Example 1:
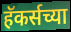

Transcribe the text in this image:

हॅकर्सच्या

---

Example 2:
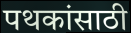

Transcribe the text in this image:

पथकांसाठी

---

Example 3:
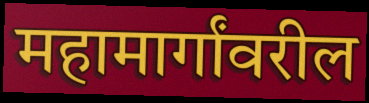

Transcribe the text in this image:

महामार्गांवरील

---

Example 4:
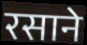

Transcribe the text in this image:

रसाने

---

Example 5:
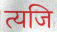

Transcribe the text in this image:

त्यजि